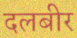
दलबीर